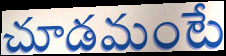
చూడమంటే